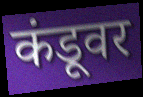
कंडूवर